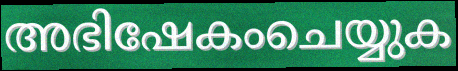
അഭിഷേകംചെയ്യുക